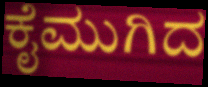
ಕೈಮುಗಿದ